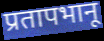
प्रतापभानू